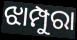
ଝାମ୍ପୁରା